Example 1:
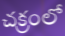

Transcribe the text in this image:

చక్రంలో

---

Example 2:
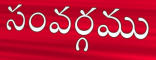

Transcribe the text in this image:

సంవర్గము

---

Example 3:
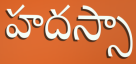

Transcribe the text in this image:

హదస్సా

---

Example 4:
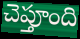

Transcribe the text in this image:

చెప్తూంది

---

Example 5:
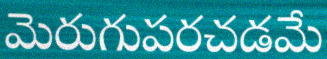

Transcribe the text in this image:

మెరుగుపరచడమే